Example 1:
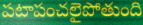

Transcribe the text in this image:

పటాపంచలైపోతుంది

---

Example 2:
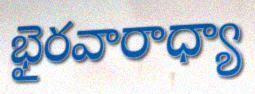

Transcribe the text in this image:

భైరవారాధ్యా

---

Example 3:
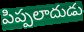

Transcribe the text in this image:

పిప్పలాదుడు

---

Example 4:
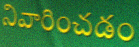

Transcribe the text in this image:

నివారించడం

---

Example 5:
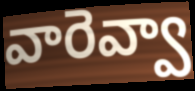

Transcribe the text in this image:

వారెవ్వా